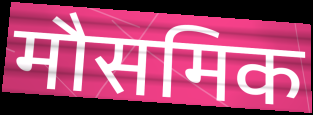
मौसमिक